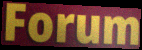
Forum